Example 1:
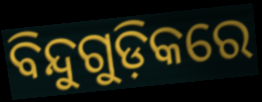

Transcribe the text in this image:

ବିନ୍ଦୁଗୁଡ଼ିକରେ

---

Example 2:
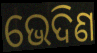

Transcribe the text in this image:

ଭେଦିଣ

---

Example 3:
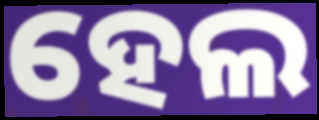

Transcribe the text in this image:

ହେଲ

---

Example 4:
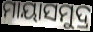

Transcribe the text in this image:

ମାୟାସମୁଦ୍ର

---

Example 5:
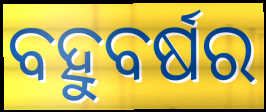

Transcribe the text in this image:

ବହୁବର୍ଷର